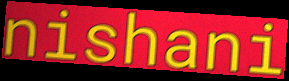
nishani